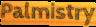
Palmistry